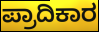
ಪ್ರಾದಿಕಾರ